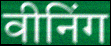
वीनिंग